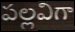
పల్లవిగా